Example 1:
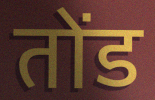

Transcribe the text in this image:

तोंड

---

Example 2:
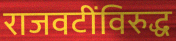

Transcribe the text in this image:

राजवटींविरुद्ध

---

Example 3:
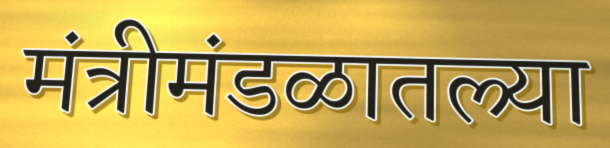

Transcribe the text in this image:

मंत्रीमंडळातल्या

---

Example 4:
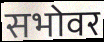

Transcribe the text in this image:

सभोवर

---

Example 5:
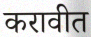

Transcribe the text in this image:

करावीत